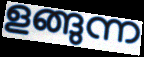
ളങ്ങുന്ന